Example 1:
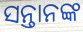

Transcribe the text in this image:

ସନ୍ତାନଙ୍କ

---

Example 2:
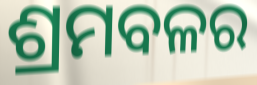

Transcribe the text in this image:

ଶ୍ରମବଳର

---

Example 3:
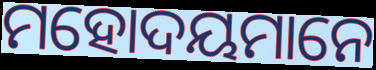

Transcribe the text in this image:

ମହୋଦୟମାନେ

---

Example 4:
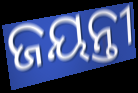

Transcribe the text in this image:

ଜୟନ୍ତୀ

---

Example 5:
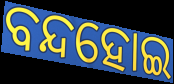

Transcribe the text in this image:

ବନ୍ଦହୋଇ